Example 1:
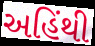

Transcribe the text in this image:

અહિંથી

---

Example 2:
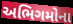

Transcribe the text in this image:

અભિગમોના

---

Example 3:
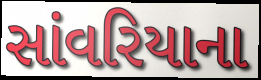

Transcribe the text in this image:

સાંવરિયાના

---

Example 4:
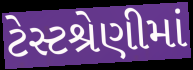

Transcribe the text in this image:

ટેસ્ટશ્રેણીમાં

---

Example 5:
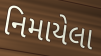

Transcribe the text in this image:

નિમાયેલા